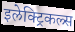
इलेक्ट्रिकल्स